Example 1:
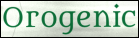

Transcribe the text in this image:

Orogenic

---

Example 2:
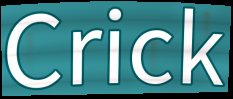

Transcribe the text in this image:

Crick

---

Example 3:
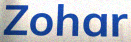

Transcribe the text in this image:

Zohar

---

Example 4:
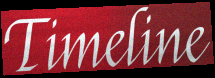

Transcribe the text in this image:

Timeline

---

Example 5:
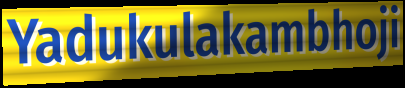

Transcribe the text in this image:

Yadukulakambhoji